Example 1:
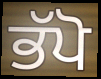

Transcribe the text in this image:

ਭੱਪੋ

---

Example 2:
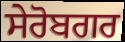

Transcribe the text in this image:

ਸੇਰੋਬਗਰ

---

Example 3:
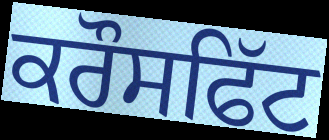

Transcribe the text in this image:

ਕਰੌਸਫਿੱਟ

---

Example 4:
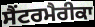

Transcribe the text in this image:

ਸੈਂਟਰਮੈਰੀਕਾ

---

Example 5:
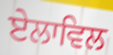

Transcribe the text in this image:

ਏਲਾਵਿਲ